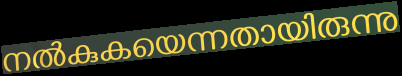
നൽകുകയെന്നതായിരുന്നു